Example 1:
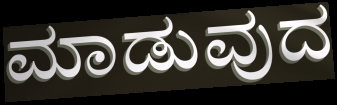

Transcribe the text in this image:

ಮಾಡುವುದ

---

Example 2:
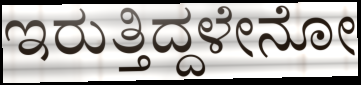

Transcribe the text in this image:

ಇರುತ್ತಿದ್ದಳೇನೋ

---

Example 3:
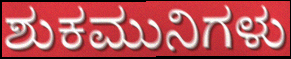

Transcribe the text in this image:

ಶುಕಮುನಿಗಳು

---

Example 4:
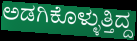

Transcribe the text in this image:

ಅಡಗಿಕೊಳ್ಳುತ್ತಿದ್ದ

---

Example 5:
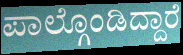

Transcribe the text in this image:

ಪಾಲ್ಗೊಂಡಿದ್ದಾರೆ